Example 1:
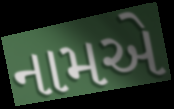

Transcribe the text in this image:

નામએ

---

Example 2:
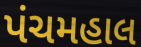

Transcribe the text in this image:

પંચમહાલ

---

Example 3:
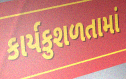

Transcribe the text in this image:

કાર્યકુશળતામાં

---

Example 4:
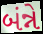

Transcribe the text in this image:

બંન્ને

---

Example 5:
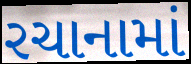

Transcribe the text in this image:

રચાનામાં